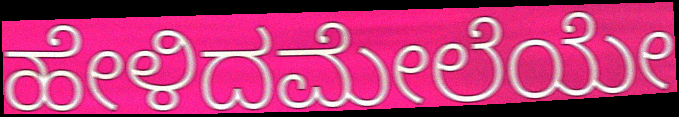
ಹೇಳಿದಮೇಲೆಯೇ